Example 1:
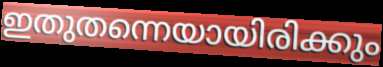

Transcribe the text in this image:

ഇതുതന്നെയായിരിക്കും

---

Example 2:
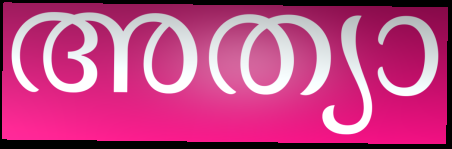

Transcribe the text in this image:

അത്യാ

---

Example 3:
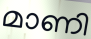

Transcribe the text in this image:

മാണി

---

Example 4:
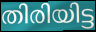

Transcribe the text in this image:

തിരിയിട്ട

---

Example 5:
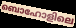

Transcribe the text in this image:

ബൊഹോളിലെ